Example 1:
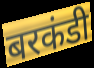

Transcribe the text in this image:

बरकंडी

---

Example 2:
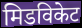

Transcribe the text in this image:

मिडविकेट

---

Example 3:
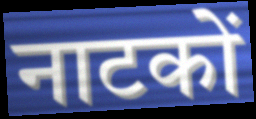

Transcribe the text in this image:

नाटकों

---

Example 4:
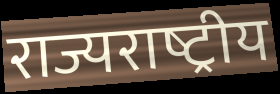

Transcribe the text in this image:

राज्यराष्ट्रीय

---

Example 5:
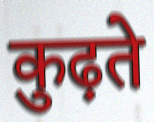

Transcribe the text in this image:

कुढ़ते